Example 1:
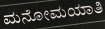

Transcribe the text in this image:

ಮನೋಮಯಾತಿ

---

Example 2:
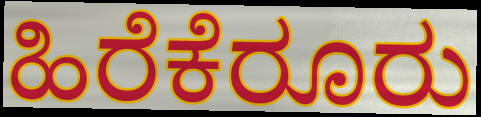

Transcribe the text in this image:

ಹಿರೆಕೆರೂರು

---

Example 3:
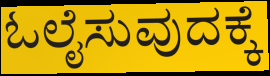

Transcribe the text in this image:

ಓಲೈಸುವುದಕ್ಕೆ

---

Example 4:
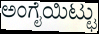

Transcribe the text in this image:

ಅಂಗೈಯಿಟ್ಟು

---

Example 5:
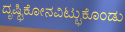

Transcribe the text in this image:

ದೃಷ್ಟಿಕೋನವಿಟ್ಟುಕೊಂಡು